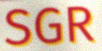
SGR